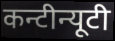
कन्टीन्यूटी